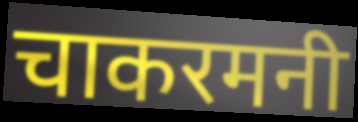
चाकरमनी